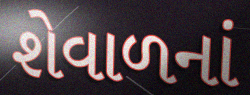
શેવાળનાં